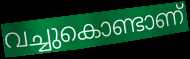
വച്ചുകൊണ്ടാണ്